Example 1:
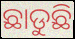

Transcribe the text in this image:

ଛାଡୁଛି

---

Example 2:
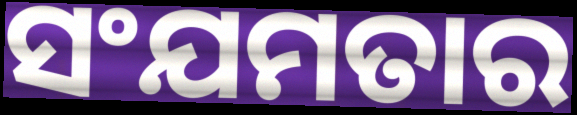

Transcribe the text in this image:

ସଂଯମତାର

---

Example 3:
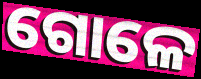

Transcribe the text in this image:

ଗୋଳେ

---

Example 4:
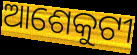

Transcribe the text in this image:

ଆଶେକୁଟୀ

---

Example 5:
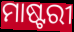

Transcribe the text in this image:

ମାଷ୍ଟରୀ